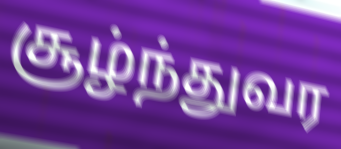
சூழ்ந்துவர